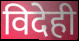
विदेही